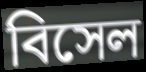
বিসেল